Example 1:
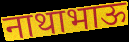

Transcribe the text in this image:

नाथाभाऊ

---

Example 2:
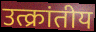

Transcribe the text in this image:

उत्क्रांतीय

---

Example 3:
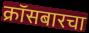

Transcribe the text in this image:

क्रॉसबारचा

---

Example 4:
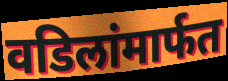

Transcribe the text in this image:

वडिलांमार्फत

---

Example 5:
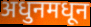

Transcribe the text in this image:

अधुनमधून